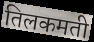
तिलकमती